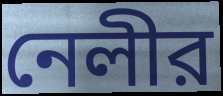
নেলীর